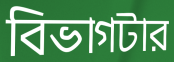
বিভাগটার